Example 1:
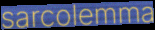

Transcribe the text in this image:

sarcolemma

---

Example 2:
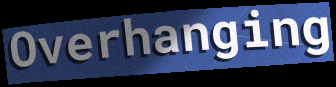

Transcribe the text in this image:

Overhanging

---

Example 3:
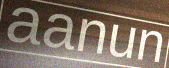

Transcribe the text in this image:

aanun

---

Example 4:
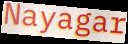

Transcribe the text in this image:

Nayagar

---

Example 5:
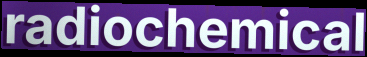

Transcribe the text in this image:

radiochemical